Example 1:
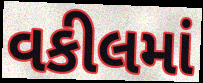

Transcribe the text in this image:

વકીલમાં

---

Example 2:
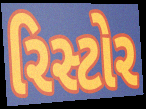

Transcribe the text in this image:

રિસ્ટોર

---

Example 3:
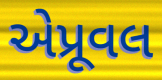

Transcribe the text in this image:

એપ્રૂવલ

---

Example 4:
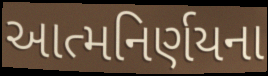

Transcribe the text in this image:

આત્મનિર્ણયના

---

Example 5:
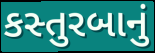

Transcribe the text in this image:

કસ્તુરબાનું